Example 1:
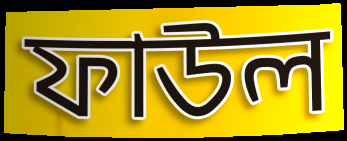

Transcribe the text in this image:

ফাউল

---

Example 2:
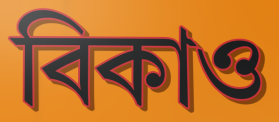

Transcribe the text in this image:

বিকাও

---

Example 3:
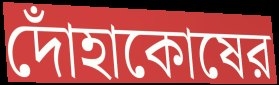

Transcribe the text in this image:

দোঁহাকোষের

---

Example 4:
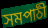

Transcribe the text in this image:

সমপাঠী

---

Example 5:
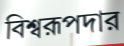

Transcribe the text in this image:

বিশ্বরূপদার